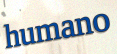
humano